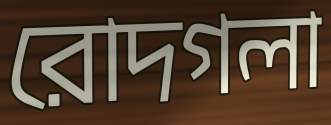
রোদগলা